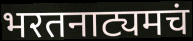
भरतनाट्यमचं